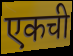
एकची